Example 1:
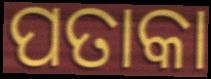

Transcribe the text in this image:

ପତାକା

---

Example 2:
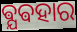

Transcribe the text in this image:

ଵ୍ଯଵହାର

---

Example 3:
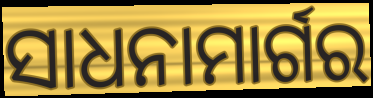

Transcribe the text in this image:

ସାଧନାମାର୍ଗର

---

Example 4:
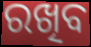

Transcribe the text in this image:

ରଖିବ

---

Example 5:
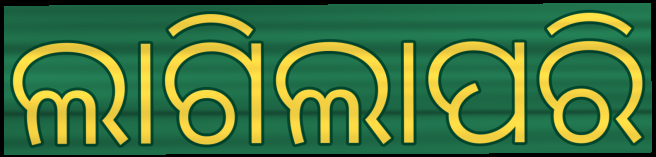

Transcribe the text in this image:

ଲାଗିଲାପରି